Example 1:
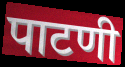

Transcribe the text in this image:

पाटणी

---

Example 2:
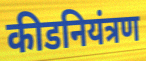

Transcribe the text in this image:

कीडनियंत्रण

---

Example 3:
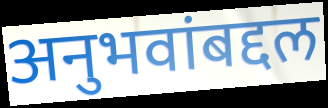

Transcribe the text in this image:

अनुभवांबद्दल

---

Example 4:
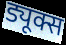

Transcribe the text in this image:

ड्यूक्स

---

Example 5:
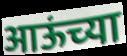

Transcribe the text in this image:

आऊंच्या